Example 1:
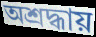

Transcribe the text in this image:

অশ্রদ্ধায়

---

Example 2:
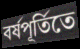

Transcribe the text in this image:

বর্ষপূর্তিতে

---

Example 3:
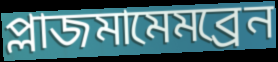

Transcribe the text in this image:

প্লাজমামেমব্রেন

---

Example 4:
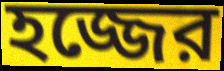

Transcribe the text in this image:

হজ্জের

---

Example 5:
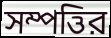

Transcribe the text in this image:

সম্পত্তির